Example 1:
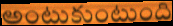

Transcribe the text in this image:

అంటుకుంటుంది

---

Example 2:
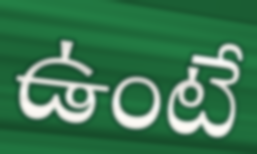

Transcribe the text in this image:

ఉంటే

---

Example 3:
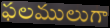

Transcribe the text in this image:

ఫలములుగా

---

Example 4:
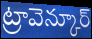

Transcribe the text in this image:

ట్రావెన్కూర్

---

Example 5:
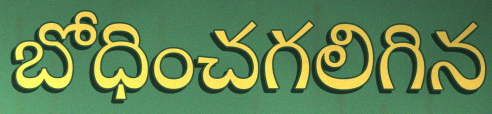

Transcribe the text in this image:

బోధించగలిగిన